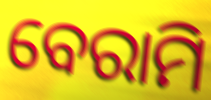
ବେରାମି